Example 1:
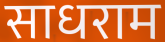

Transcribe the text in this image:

साधराम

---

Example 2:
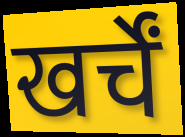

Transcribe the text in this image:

खर्चें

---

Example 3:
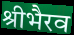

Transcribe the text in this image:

श्रीभैरव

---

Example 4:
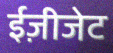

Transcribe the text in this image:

ईज़ीजेट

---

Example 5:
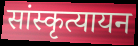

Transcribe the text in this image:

सांस्कृत्यायन